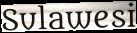
Sulawesi